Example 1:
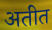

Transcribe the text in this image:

अतीत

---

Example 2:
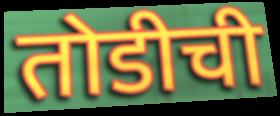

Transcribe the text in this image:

तोडीची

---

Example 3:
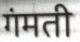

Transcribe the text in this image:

गंमती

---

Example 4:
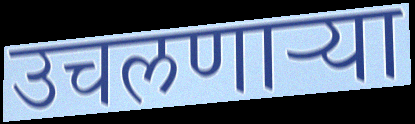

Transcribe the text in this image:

उचलणाऱ्या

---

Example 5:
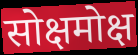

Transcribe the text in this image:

सोक्षमोक्ष